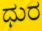
ಧುರ